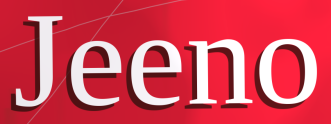
Jeeno